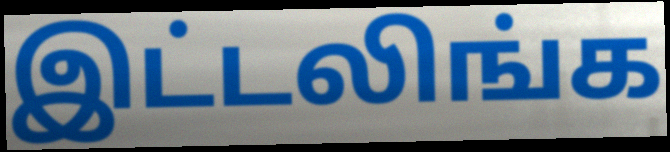
இட்டலிங்க